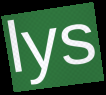
lys